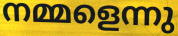
നമ്മളെന്നു